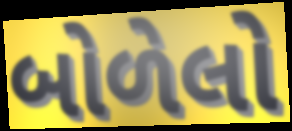
બોળેલો